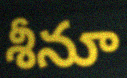
శీనూ